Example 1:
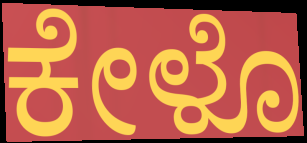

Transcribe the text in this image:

ಕೇಳೊ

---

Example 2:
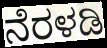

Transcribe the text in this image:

ನೆರಳಡಿ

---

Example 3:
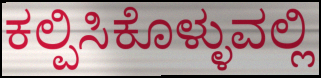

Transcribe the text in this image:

ಕಲ್ಪಿಸಿಕೊಳ್ಳುವಲ್ಲಿ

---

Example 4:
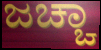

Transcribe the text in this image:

ಜಚ್ಚಾ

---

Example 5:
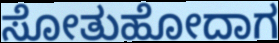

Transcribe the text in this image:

ಸೋತುಹೋದಾಗ